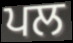
ਪਲ